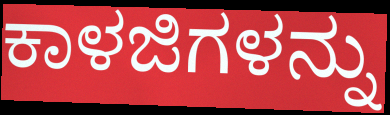
ಕಾಳಜಿಗಳನ್ನು